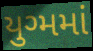
યુગ્મમાં